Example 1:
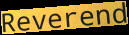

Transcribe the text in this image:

Reverend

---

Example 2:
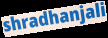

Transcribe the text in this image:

shradhanjali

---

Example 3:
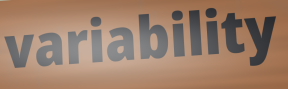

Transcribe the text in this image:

variability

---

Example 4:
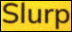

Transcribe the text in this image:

Slurp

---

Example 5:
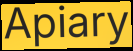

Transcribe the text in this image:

Apiary